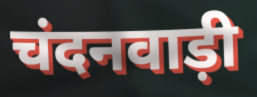
चंदनवाड़ी